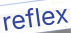
reflex